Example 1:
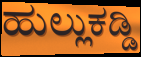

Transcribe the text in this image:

ಹುಲ್ಲುಕಡ್ಡಿ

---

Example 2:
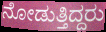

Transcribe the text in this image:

ನೋಡುತ್ತಿದ್ದರು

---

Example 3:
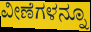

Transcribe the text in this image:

ವೀಣೆಗಳನ್ನೂ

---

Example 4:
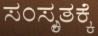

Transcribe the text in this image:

ಸಂಸ್ಕೃತಕ್ಕೆ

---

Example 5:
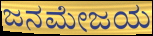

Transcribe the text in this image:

ಜನಮೇಜಯ